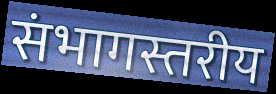
संभागस्तरीय